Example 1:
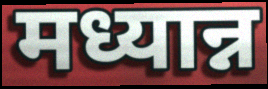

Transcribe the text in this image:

मध्यान्न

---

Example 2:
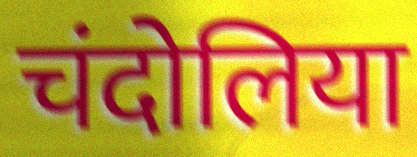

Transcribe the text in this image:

चंदोलिया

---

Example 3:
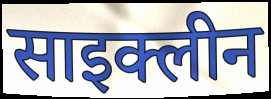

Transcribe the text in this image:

साइक्लीन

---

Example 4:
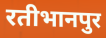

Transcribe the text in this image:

रतीभानपुर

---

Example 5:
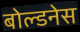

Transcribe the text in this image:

बोल्डनेस